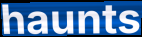
haunts